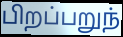
பிறப்பறுந்